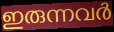
ഇരുന്നവർ